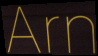
Arn